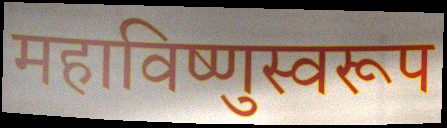
महाविष्णुस्वरूप